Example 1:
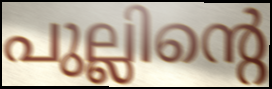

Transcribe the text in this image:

പുല്ലിന്റെ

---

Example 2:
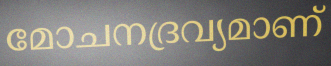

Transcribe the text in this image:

മോചനദ്രവ്യമാണ്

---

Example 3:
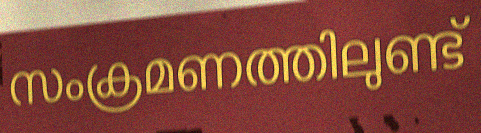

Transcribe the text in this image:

സംക്രമണത്തിലുണ്ട്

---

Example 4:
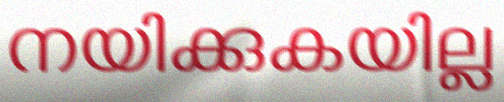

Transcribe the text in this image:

നയിക്കുകയില്ല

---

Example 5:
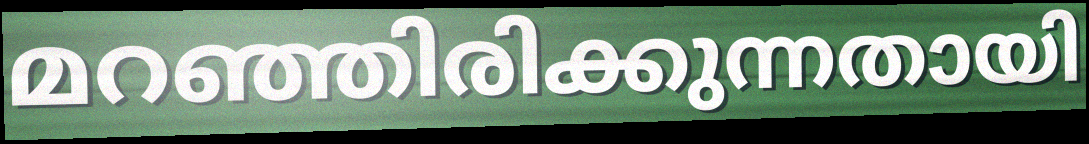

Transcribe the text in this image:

മറഞ്ഞിരിക്കുന്നതായി